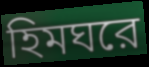
হিমঘরে